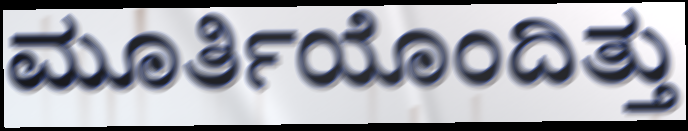
ಮೂರ್ತಿಯೊಂದಿತ್ತು